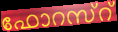
ഫോറസ്റ്